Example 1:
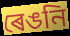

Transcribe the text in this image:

ৰেঙনি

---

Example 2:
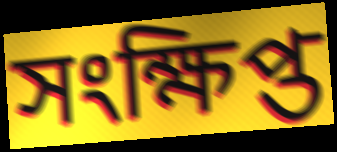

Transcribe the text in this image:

সংক্ষিপ্ত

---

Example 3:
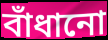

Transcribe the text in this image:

বাঁধানো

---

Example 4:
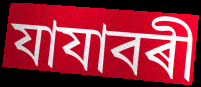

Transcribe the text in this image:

যাযাবৰী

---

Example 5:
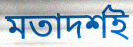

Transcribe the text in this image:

মতাদৰ্শই